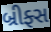
બ્રીફ્સ